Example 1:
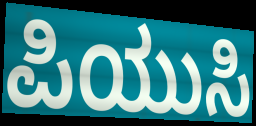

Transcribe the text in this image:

ಪಿಯುಸಿ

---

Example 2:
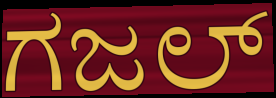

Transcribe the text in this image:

ಗಜಲ್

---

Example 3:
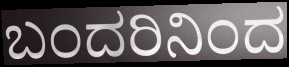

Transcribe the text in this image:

ಬಂದರಿನಿಂದ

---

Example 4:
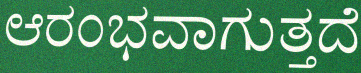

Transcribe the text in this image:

ಆರಂಭವಾಗುತ್ತದೆ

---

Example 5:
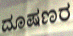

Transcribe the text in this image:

ದೂಷಣರ